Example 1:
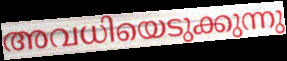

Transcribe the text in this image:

അവധിയെടുക്കുന്നു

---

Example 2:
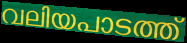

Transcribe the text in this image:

വലിയപാടത്ത്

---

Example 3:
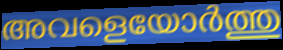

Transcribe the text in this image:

അവളെയോർത്തു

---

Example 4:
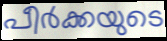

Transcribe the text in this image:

പീർക്കയുടെ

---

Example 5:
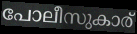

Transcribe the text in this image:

പോലീസുകാര്